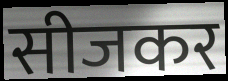
सीजकर